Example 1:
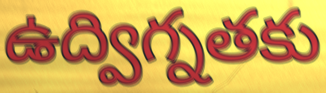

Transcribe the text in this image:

ఉద్విగ్నతకు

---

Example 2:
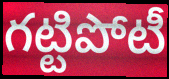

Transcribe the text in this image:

గట్టిపోటీ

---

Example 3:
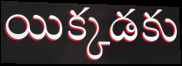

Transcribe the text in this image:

యిక్కడకు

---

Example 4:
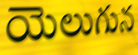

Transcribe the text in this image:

యెలుగున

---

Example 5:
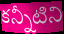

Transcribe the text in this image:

కన్నీటిని